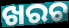
ଖରଚ